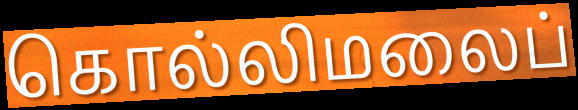
கொல்லிமலைப்